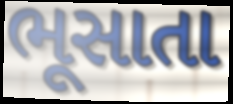
ભૂસાતા